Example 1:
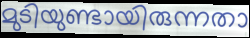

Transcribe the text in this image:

മുടിയുണ്ടായിരുന്നതാ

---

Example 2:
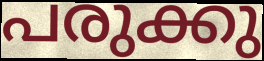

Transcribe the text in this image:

പരുക്കു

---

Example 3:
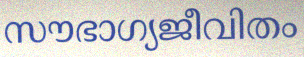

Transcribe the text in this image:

സൗഭാഗ്യജീവിതം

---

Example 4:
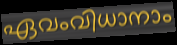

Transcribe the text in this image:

ഏവംവിധാനാം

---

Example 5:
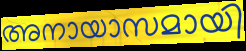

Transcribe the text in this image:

അനായാസമായി